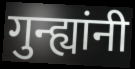
गुन्ह्यांनी